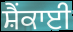
ਸ਼ੈਂਕਾਈ